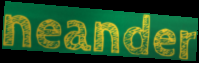
neander